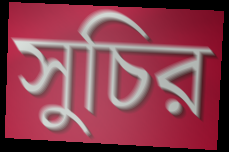
সুচির